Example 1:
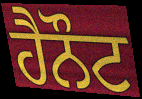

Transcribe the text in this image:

ਹੈਨੌਟ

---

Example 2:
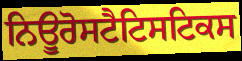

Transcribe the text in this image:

ਨਿਊਰੋਸਟੈਟਿਸਟਿਕਸ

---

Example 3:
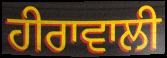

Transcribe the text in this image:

ਹੀਰਾਵਾਲੀ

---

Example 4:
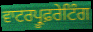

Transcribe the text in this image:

ਵਾਟਰਪ੍ਰੂਫ਼ਰੇਟਿੰਗ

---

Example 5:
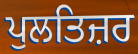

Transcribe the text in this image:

ਪੁਲਤਿਜ਼ਰ